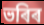
ভৰিৰ